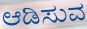
ಆಡಿಸುವ